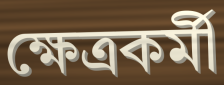
ক্ষেত্ৰকৰ্মী